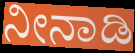
ನೀನಾಡಿ